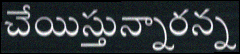
చేయిస్తున్నారన్న